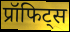
प्रॉफिट्स